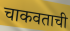
चाकवताची